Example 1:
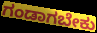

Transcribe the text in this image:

ಗಂಡಾಗಬೇಕು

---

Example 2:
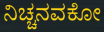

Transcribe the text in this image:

ನಿಚ್ಚನವಕೋ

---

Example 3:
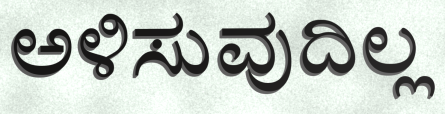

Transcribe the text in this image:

ಅಳಿಸುವುದಿಲ್ಲ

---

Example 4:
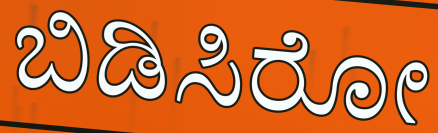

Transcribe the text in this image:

ಬಿಡಿಸಿರೋ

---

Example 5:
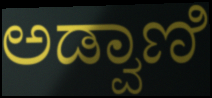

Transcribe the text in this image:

ಅಡ್ವಾಣಿ